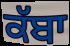
ਕੱਬਾ